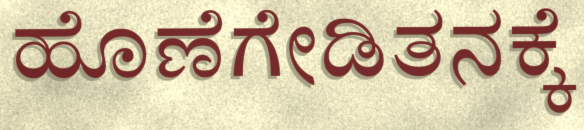
ಹೊಣೆಗೇಡಿತನಕ್ಕೆ